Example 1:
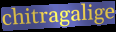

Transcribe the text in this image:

chitragalige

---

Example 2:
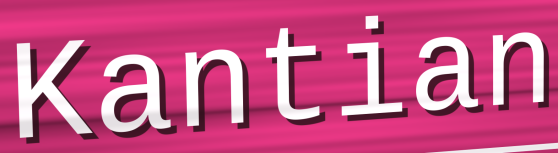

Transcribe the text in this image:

Kantian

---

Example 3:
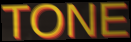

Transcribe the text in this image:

TONE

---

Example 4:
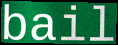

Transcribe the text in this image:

bail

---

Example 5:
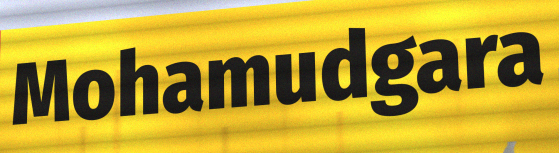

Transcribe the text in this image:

Mohamudgara